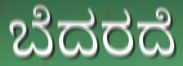
ಬೆದರದೆ